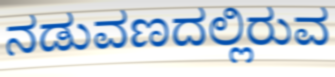
ನಡುವಣದಲ್ಲಿರುವ